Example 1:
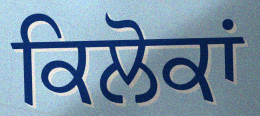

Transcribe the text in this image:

ਕਿਲੋਕਾਂ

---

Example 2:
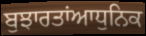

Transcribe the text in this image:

ਬੁਝਾਰਤਾਂਆਧੁਨਿਕ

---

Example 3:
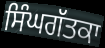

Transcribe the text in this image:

ਸਿੰਘਗੱਤਕਾ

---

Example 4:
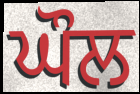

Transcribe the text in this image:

ਘੌਲ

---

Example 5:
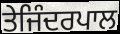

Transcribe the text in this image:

ਤੇਜਿੰਦਰਪਾਲ